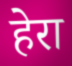
हेरा